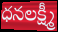
ధనలక్ష్మీ